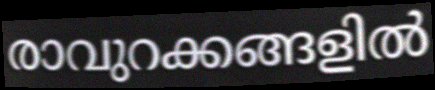
രാവുറക്കങ്ങളിൽ